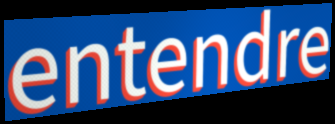
entendre